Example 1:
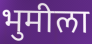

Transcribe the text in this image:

भुमीला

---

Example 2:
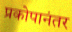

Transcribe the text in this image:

प्रकोपानंतर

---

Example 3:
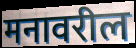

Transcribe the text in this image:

मनावरील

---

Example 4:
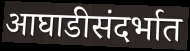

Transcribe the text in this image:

आघाडीसंदर्भात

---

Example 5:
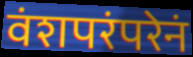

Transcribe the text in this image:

वंशपरंपरेनं